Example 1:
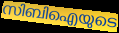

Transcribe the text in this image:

സിബിഐയുടെ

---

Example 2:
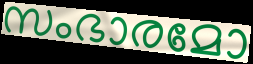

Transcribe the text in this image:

സംഭാരമോ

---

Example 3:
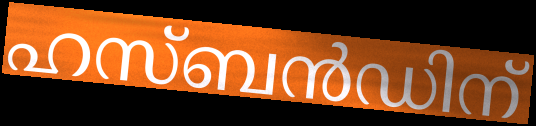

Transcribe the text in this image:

ഹസ്ബൻഡിന്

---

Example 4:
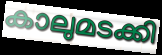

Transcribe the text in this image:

കാലുമടക്കി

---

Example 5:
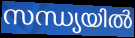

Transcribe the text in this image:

സന്ധ്യയിൽ